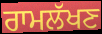
ਰਾਮਲੱਖਣ